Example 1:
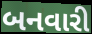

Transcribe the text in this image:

બનવારી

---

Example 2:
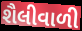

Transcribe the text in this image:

શૈલીવાળી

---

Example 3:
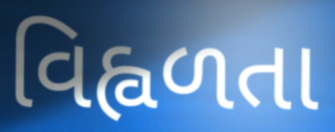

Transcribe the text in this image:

વિહ્વળતા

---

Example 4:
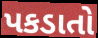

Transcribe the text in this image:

પકડાતો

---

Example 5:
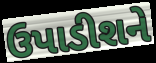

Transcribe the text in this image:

ઉપાડીશને